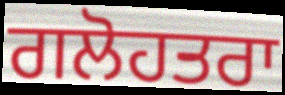
ਗਲੋਹਤਰਾ